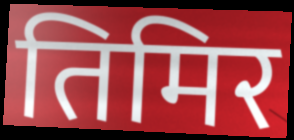
तिमिर